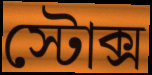
স্টোক্স